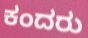
ಕಂದರು